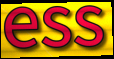
ess